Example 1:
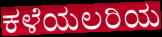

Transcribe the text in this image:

ಕಳೆಯಲರಿಯ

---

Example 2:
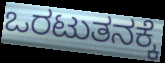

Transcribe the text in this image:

ಒರಟುತನಕ್ಕೆ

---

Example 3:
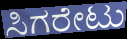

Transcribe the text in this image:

ಸಿಗರೇಟು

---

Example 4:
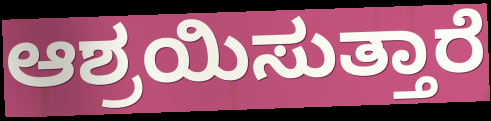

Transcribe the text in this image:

ಆಶ್ರಯಿಸುತ್ತಾರೆ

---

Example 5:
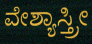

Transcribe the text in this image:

ವೇಶ್ಯಾಸ್ತ್ರೀ